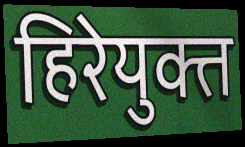
हिरेयुक्त